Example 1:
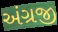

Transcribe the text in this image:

અંગ્રજી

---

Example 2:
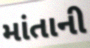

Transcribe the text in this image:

માંતાની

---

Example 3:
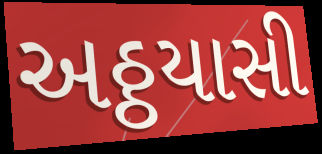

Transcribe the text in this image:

અઠ્ઠયાસી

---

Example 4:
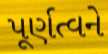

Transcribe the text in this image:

પૂર્ણત્વને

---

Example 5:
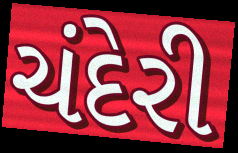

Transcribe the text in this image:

ચંદેરી